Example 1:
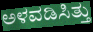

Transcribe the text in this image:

ಅಳವಡಿಸಿತ್ತು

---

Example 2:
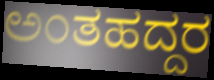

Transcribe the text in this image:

ಅಂತಹದ್ದರ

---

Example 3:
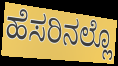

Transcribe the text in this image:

ಹೆಸರಿನಲ್ಲೊ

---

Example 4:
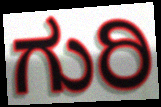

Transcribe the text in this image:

ಗುರಿ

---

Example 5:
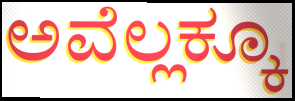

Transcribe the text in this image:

ಅವೆಲ್ಲಕ್ಕೂ